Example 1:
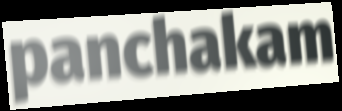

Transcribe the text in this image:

panchakam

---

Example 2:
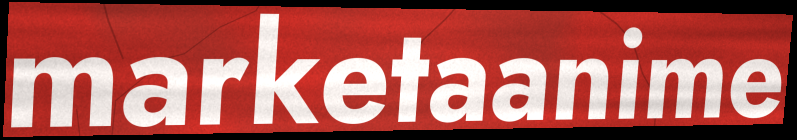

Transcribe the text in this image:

marketaanime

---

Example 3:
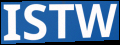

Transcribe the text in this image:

ISTW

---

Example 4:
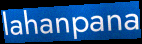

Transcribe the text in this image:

lahanpana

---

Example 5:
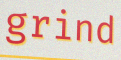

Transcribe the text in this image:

grind